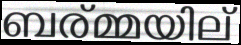
ബര്മ്മയില്